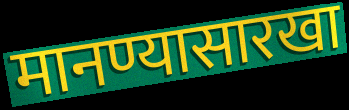
मानण्यासारखा